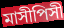
মাসীপিসী